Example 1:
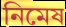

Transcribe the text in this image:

নিমেষ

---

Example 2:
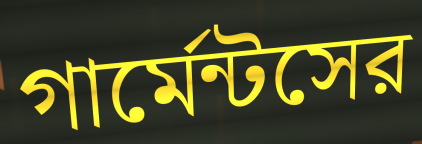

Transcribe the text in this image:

গার্মেন্টসের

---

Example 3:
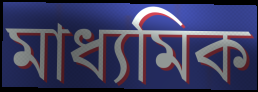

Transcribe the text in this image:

মাধ্যমিক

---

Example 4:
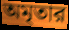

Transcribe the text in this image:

অমৃতার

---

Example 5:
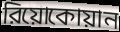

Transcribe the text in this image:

রিয়োকোয়ান